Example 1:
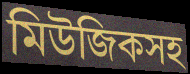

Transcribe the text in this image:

মিউজিকসহ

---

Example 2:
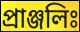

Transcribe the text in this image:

প্রাঞ্জলিঃ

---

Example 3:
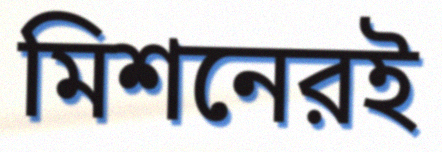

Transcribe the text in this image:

মিশনেরই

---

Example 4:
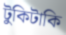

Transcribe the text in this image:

টুকিটাকি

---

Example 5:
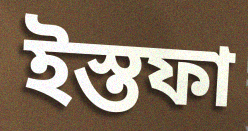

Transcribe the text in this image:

ইস্তফা